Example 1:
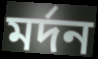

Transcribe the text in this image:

মৰ্দন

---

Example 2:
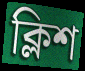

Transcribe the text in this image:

ক্লিশ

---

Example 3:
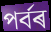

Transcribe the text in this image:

পৰ্বৰ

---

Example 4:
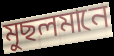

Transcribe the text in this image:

মুছলমানে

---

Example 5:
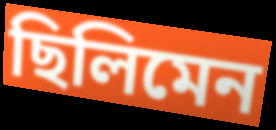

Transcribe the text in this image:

ছিলিমেন